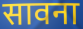
सावना